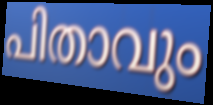
പിതാവും